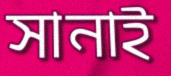
সানাই